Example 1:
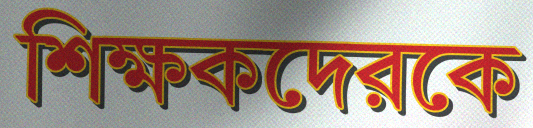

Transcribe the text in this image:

শিক্ষকদেরকে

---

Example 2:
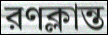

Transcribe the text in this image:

রণক্লান্ত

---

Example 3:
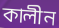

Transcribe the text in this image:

কালীন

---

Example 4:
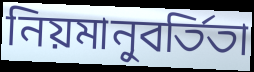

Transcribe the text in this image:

নিয়মানুবর্তিতা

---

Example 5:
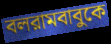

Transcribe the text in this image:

বলরামবাবুকে